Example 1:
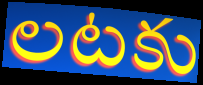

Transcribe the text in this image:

లటకు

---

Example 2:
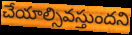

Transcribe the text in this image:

చేయాల్సివస్తుందని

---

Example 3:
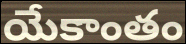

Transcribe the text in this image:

యేకాంతం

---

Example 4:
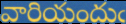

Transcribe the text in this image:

వారియందుఁ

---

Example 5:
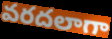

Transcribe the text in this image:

వరదలాగా